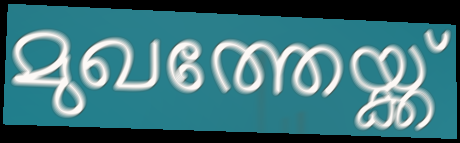
മുഖത്തേയ്ക്ക്